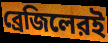
ব্রেজিলেরই